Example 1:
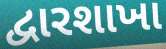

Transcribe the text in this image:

દ્વારશાખા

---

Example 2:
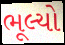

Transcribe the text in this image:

ભૂલ્‍યો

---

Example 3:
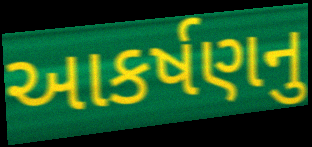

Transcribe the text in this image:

આકર્ષણનુ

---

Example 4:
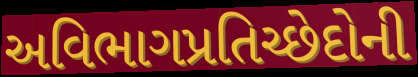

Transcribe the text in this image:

અવિભાગપ્રતિચ્છેદોની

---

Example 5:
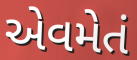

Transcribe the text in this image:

એવમેતં